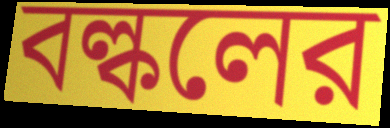
বল্কলের